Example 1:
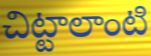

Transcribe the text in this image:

చిట్టాలాంటి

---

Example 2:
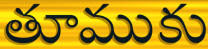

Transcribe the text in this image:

తూముకు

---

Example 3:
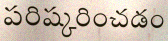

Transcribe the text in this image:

పరిష్కరించడం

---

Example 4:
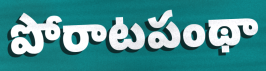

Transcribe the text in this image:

పోరాటపంథా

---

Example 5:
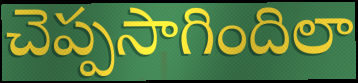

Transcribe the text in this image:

చెప్పసాగిందిలా